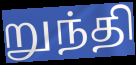
றுந்தி